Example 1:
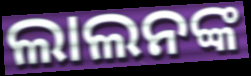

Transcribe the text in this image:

ଲାଲନଙ୍କ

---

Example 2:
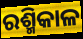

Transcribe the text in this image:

ରଶ୍ମିକାଳ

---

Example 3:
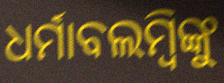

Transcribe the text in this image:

ଧର୍ମାବଲମ୍ବିଙ୍କୁ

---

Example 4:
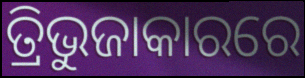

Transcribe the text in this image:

ତ୍ରିଭୁଜାକାରରେ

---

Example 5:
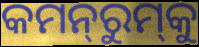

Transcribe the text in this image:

କମନ୍‍ରୁମ୍‍କୁ